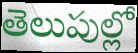
తెలుపుల్లో